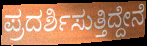
ಪ್ರದರ್ಶಿಸುತ್ತಿದ್ದೇನೆ